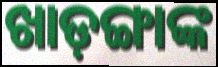
ଖାଡ଼ଙ୍ଗାଙ୍କ